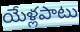
యేళ్లపాటు